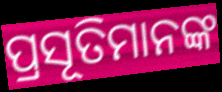
ପ୍ରସୂତିମାନଙ୍କ